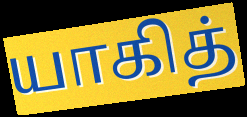
யாகித்